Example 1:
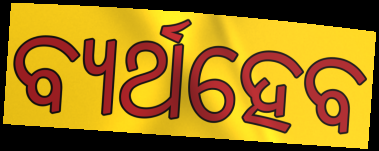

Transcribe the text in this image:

ବ୍ୟର୍ଥହେବ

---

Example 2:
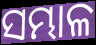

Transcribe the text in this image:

ସମ୍ଭାଳ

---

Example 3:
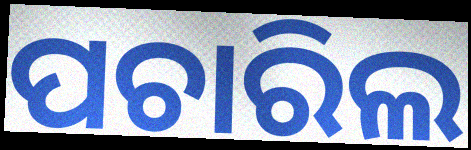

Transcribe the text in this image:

ପଚାରିଲ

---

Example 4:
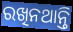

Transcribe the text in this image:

ରଖିନଥାନ୍ତି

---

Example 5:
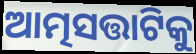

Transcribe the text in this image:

ଆତ୍ମସତ୍ତାଟିକୁ